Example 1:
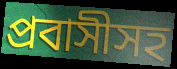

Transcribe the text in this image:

প্রবাসীসহ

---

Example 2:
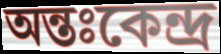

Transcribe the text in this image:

অন্তঃকেন্দ্র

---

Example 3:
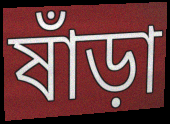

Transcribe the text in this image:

ষাঁড়া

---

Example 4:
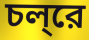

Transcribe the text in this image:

চল্‌রে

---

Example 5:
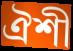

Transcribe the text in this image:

ঐশী